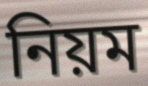
নিয়ম